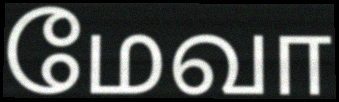
மேவா